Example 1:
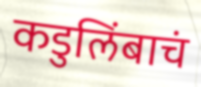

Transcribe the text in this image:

कडुलिंबाचं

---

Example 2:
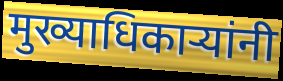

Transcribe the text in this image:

मुख्याधिकाऱ्यांनी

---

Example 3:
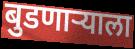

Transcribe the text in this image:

बुडणाऱ्याला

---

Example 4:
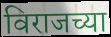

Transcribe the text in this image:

विराजच्या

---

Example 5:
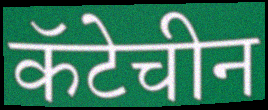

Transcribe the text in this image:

कॅटेचीन